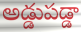
అడ్డుపడ్డా